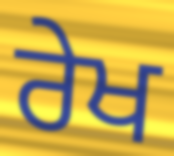
ਰੇਖ